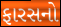
ફારસનો